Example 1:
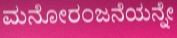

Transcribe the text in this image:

ಮನೋರಂಜನೆಯನ್ನೇ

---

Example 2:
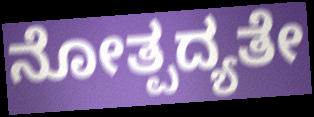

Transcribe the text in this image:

ನೋತ್ಪದ್ಯತೇ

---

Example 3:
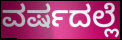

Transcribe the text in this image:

ವರ್ಷದಲ್ಲೆ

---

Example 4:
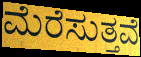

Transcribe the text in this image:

ಮೆರೆಸುತ್ತವೆ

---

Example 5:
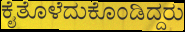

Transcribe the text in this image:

ಕೈತೊಳೆದುಕೊಂಡಿದ್ದರು